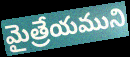
మైత్రేయముని